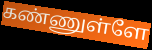
கண்ணுள்ளே